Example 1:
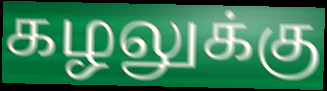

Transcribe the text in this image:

கழலுக்கு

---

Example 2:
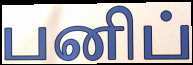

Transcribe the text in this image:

பனிப்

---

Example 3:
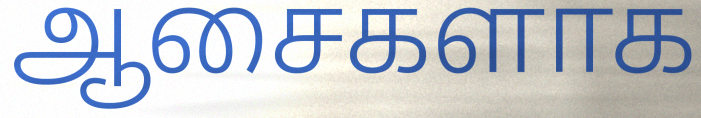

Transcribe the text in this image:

ஆசைகளாக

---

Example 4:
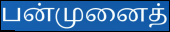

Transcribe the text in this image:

பன்முனைத்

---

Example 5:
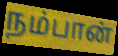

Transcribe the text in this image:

நம்பான்